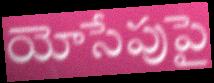
యోసేపుపై